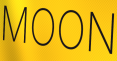
MOON